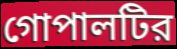
গোপালটির